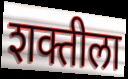
शक्तीला